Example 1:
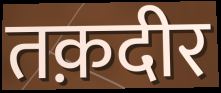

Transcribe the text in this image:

तक़दीर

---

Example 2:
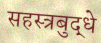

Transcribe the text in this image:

सहस्त्रबुद्धे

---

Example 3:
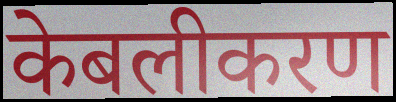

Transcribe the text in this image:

केबलीकरण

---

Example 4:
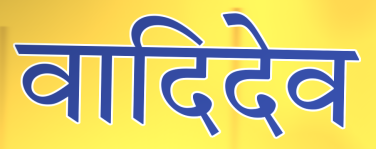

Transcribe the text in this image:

वादिदेव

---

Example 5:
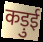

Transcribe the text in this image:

कड़ुई